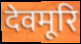
देवमूरि